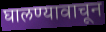
घालण्यावाचून